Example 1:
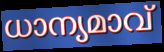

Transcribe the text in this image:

ധാന്യമാവ്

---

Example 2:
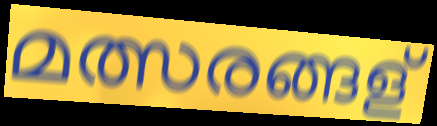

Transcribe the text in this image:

മത്സരങ്ങള്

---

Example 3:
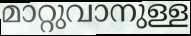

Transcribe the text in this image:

മാറ്റുവാനുള്ള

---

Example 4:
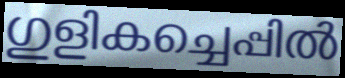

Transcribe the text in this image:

ഗുളികച്ചെപ്പിൽ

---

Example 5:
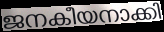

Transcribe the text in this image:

ജനകീയനാക്കി